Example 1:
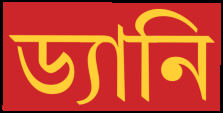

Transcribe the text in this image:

ড্যানি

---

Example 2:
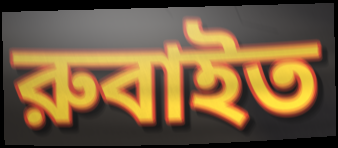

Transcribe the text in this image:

রুবাইত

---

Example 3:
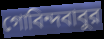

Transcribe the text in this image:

গোবিন্দবাবুর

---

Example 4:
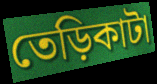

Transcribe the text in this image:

তেড়িকাটা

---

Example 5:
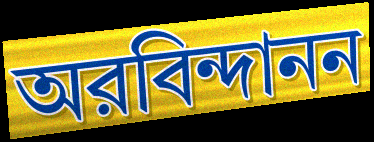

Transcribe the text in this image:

অরবিন্দানন